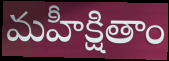
మహీక్షితాం